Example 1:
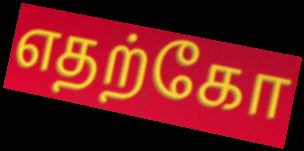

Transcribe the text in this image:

எதற்கோ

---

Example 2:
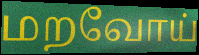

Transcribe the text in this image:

மறவோய்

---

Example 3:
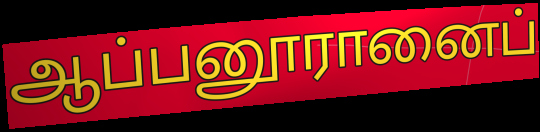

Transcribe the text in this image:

ஆப்பனூரானைப்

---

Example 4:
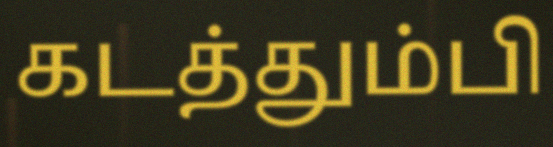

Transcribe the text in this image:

கடத்தும்பி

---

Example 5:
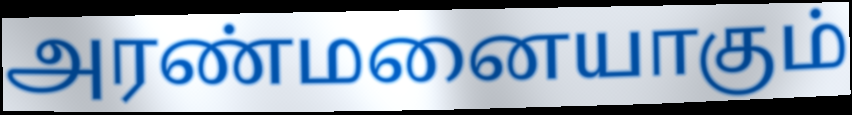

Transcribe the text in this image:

அரண்மனையாகும்